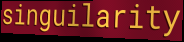
singuilarity